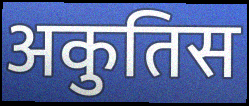
अकुतिस